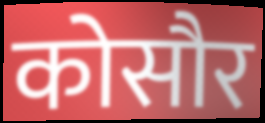
कोसौर